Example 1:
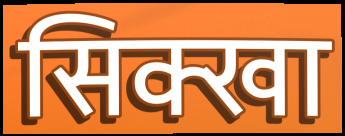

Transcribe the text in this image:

सिक्खा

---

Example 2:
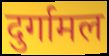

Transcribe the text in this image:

दुर्गामल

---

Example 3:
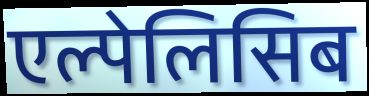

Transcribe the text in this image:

एल्पेलिसिब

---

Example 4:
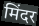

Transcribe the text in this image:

मिंदर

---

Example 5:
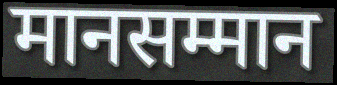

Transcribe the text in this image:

मानसम्मान